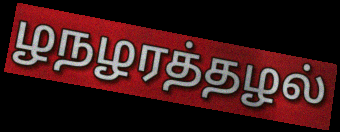
ழநழரத்தழல்